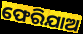
ଫେରିଯାଅ